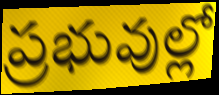
ప్రభువుల్లో